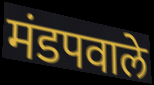
मंडपवाले